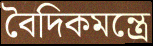
বৈদিকমন্ত্রে